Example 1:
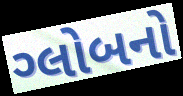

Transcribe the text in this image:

ગ્લોબનો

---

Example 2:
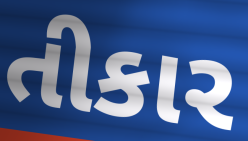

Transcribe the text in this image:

તીકાર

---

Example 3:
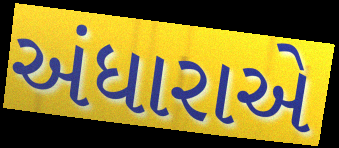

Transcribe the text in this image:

અંધારાએ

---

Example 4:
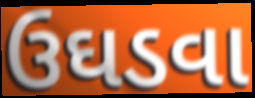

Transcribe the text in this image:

ઉઘડવા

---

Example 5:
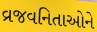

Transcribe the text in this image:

વ્રજવનિતાઓને